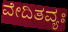
ವೇದಿತವ್ಯಃ